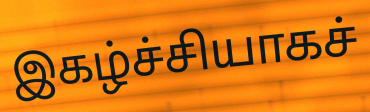
இகழ்ச்சியாகச்